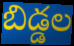
బిడ్డల